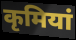
कृमियां